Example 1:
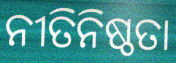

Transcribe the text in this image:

ନୀତିନିଷ୍ଠତା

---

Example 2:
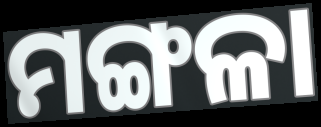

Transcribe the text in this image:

ମଙ୍ଗଳା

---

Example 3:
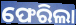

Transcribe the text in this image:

ଫେରିଲା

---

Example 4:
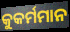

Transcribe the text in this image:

କୁକର୍ମମାନ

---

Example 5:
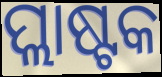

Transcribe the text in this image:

ପ୍ଲାଷ୍ଟକ